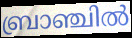
ബ്രാഞ്ചിൽ